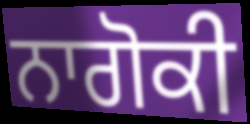
ਨਾਗੋਕੀ